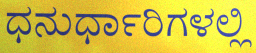
ಧನುರ್ಧಾರಿಗಳಲ್ಲಿ